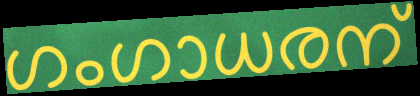
ഗംഗാധരന്